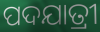
ପଦଯାତ୍ରୀ